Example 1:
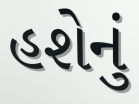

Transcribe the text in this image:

હશેનું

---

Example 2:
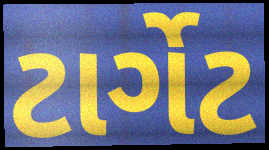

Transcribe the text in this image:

ટાર્ગેટ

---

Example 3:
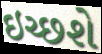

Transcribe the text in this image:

ઇચ્છશે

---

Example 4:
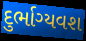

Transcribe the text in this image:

દુર્ભાગ્યવશ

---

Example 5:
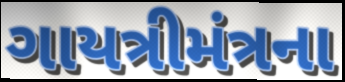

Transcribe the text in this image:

ગાયત્રીમંત્રના